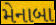
મેનાબા